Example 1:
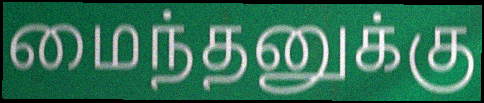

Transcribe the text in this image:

மைந்தனுக்கு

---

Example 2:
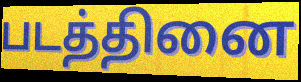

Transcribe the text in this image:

படத்தினை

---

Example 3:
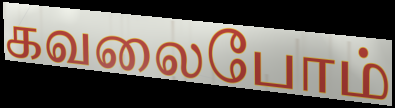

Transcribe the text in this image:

கவலைபோம்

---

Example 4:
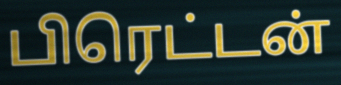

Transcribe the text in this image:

பிரெட்டன்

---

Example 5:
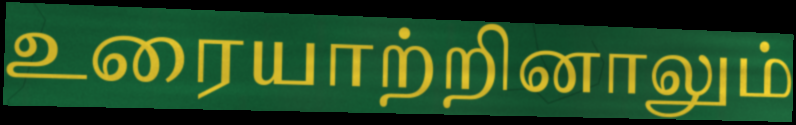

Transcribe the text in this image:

உரையாற்றினாலும்